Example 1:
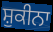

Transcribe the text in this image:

ਸ਼ੁਕੀਨਾ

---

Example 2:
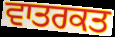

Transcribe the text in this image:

ਵਾਤਰਕਤ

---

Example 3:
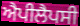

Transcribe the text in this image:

ਐਪੀਲੈਪਸੀ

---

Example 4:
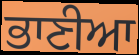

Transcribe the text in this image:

ਭਾਣੀਆ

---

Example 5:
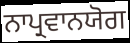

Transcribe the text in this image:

ਨਾਪ੍ਰਵਾਨਯੋਗ